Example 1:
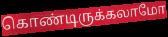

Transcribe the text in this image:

கொண்டிருக்கலாமோ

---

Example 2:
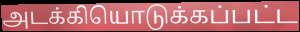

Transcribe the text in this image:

அடக்கியொடுக்கப்பட்ட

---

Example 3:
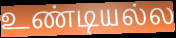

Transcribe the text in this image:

உண்டியல்ல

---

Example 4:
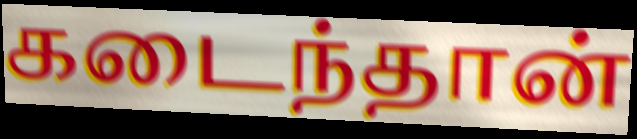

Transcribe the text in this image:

கடைந்தான்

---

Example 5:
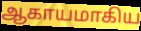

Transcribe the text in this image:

ஆகாயமாகிய